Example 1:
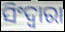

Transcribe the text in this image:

ସିଂଦ୍ୱାରା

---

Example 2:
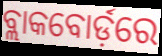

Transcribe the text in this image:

ବ୍ଲାକବୋର୍ଡ଼ରେ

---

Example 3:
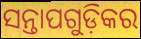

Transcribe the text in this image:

ସନ୍ତାପଗୁଡ଼ିକର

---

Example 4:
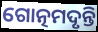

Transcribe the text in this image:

ଗୋତ୍ନମଦୃନ୍ତି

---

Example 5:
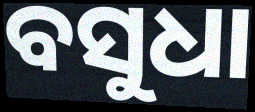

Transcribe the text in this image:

ବସୁଧା